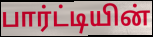
பார்ட்டியின்